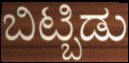
ಬಿಟ್ಬಿಡು